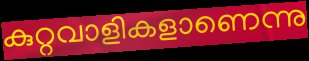
കുറ്റവാളികളാണെന്നു